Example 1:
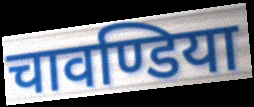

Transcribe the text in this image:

चावण्डिया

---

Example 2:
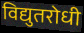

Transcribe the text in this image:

विद्युतरोधी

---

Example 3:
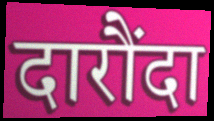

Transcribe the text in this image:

दारौंदा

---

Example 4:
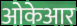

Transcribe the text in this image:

ओकेआर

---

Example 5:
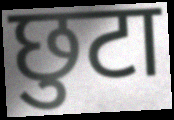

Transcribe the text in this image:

छुटा